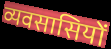
व्यवसासियों